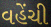
વહેંચી